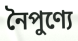
নৈপুণ্যে